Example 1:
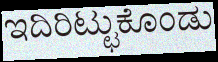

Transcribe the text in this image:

ಇದಿರಿಟ್ಟುಕೊಂಡು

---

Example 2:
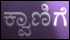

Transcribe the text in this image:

ಕ್ವಾಣಿಗೆ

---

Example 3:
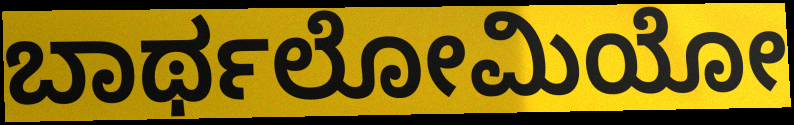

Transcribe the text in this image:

ಬಾರ್ಥಲೋಮಿಯೋ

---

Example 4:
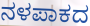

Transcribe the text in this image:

ನಳಪಾಕದ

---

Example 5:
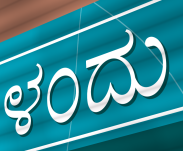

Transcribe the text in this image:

ಳಂದು